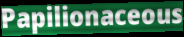
Papilionaceous